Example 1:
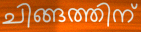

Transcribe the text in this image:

ചിങ്ങത്തിന്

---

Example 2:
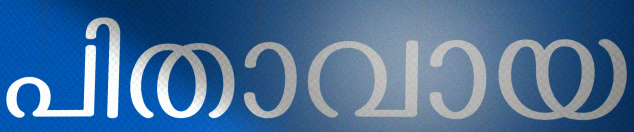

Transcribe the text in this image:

പിതാവായ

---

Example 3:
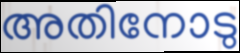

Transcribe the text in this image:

അതിനോടു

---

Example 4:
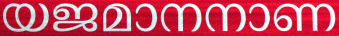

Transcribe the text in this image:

യജമാനനാണ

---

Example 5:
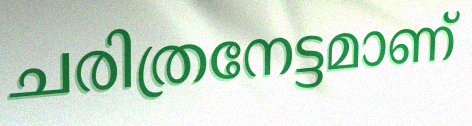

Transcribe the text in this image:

ചരിത്രനേട്ടമാണ്